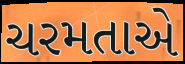
ચરમતાએ